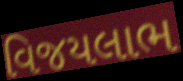
વિજયલાભ